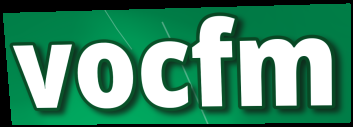
vocfm